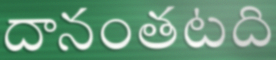
దానంతటది